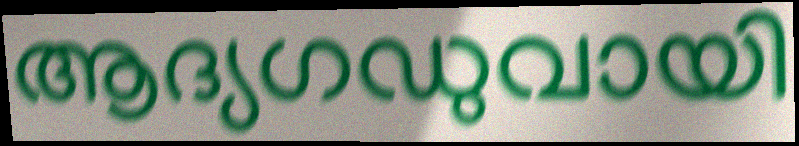
ആദ്യഗഡുവായി